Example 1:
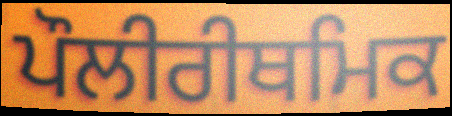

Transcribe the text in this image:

ਪੌਲੀਰੀਥਮਿਕ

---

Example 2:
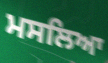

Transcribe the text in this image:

ਮਸਲਿਆ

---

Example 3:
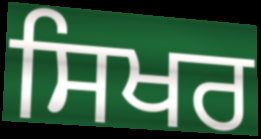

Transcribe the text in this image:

ਸਿਖਰ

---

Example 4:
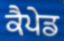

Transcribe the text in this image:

ਕੈਪੇਡ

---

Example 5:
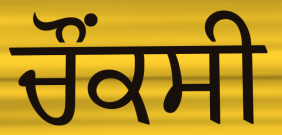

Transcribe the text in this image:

ਚੌਂਕਸੀ